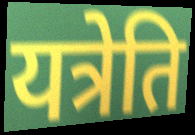
यत्रेति